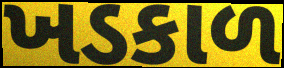
ખડકાળ